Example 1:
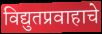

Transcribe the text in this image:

विद्युतप्रवाहाचे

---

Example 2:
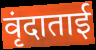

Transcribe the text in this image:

वृंदाताई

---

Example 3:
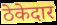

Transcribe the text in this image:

ठेकेदार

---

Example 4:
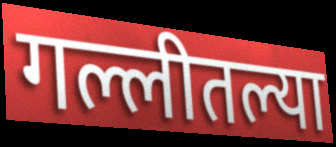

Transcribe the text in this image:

गल्लीतल्या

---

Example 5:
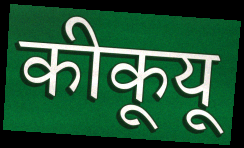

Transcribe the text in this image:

कीकूयू